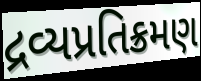
દ્રવ્યપ્રતિક્રમણ